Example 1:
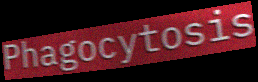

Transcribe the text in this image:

Phagocytosis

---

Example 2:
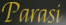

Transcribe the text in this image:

Parasi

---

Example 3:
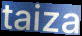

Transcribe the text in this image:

taiza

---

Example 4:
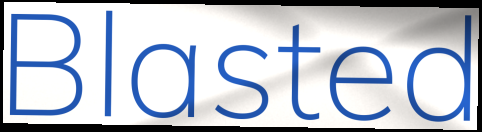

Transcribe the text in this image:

Blasted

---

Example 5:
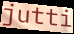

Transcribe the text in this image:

jutti